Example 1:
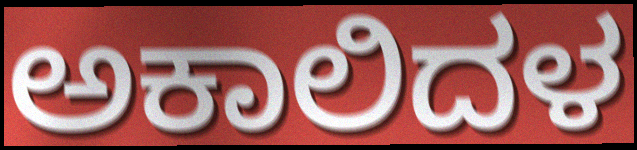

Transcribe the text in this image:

ಅಕಾಲಿದಳ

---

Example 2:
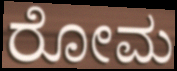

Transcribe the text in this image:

ರೋಮ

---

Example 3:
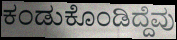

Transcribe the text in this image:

ಕಂಡುಕೊಂಡಿದ್ದೆವು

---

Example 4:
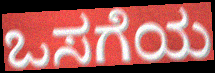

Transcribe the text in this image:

ಒಸಗೆಯ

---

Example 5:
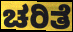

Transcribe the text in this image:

ಚರಿತೆ